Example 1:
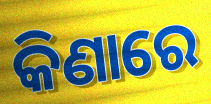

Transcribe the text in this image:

କିଣାରେ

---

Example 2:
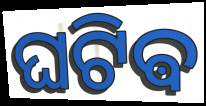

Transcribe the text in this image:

ଘଟିଵ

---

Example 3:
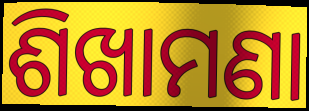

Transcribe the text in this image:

ଶିଖାମଣା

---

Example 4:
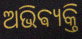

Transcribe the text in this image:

ଅଭିଵ୍ୟକ୍ତି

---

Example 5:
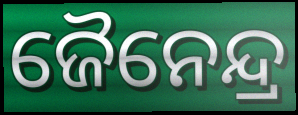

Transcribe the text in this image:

ଜୈନେନ୍ଦ୍ର